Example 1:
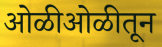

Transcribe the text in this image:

ओळीओळीतून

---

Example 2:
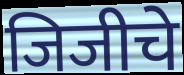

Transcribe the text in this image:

जिजीचे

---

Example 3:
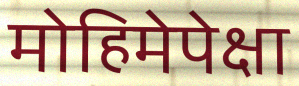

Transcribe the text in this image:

मोहिमेपेक्षा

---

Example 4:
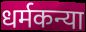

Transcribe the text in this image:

धर्मकन्या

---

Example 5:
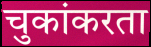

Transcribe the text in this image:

चुकांकरता